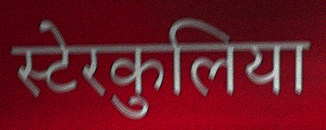
स्टेरकुलिया